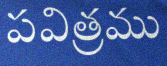
పవిత్రము